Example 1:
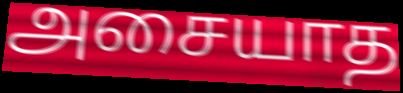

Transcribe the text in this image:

அசையாத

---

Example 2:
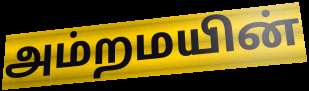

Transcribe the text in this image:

அம்றமயின்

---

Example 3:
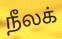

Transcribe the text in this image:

நீலக்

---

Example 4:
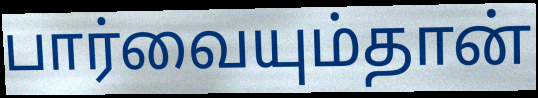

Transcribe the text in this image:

பார்வையும்தான்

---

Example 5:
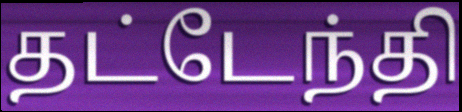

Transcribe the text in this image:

தட்டேந்தி